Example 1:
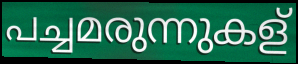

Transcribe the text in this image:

പച്ചമരുന്നുകള്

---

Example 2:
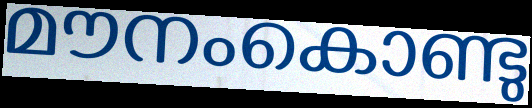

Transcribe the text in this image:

മൗനംകൊണ്ടു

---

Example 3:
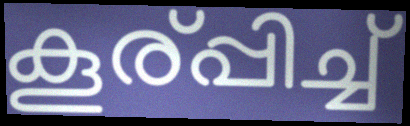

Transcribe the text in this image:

കൂര്പ്പിച്ച്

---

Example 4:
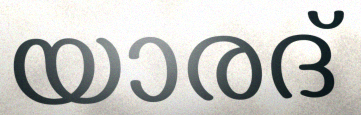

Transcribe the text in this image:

യാരദ്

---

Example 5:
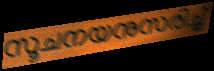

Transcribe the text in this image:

സൂചനയനുസരിച്ച്